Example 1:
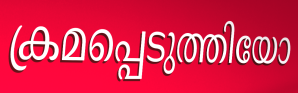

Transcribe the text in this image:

ക്രമപ്പെടുത്തിയോ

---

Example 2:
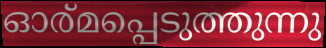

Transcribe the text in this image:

ഓര്മപ്പെടുത്തുന്നു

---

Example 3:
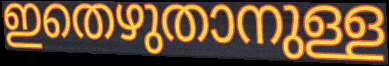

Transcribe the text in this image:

ഇതെഴുതാനുള്ള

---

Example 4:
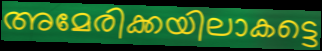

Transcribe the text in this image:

അമേരിക്കയിലാകട്ടെ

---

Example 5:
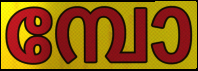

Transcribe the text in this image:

മ്പോ